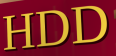
HDD